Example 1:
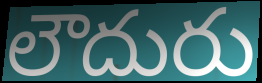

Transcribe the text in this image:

లౌదురు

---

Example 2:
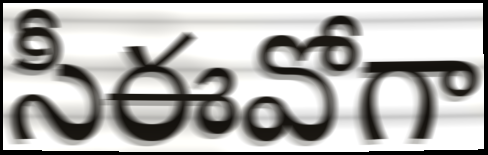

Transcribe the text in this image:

సీఈవోగా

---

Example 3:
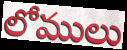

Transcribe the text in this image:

లోములు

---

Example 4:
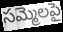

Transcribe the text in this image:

సమ్మెలపై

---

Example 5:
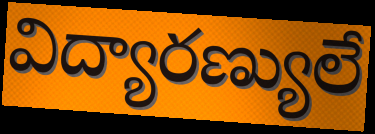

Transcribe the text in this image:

విద్యారణ్యులే